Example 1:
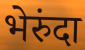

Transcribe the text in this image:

भेरुंदा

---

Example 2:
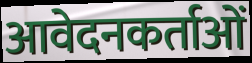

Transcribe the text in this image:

आवेदनकर्ताओं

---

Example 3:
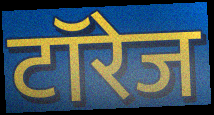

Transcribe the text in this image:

टॉरेज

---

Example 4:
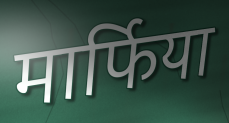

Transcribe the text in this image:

मार्फिया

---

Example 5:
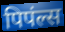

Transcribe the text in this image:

पिपंल्स